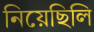
নিয়েছিলি